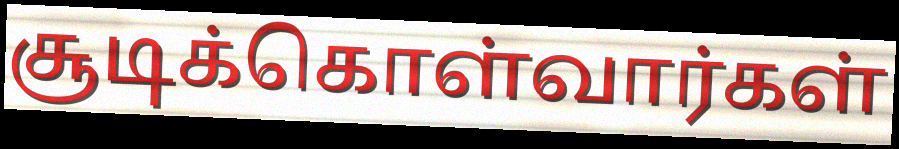
சூடிக்கொள்வார்கள்